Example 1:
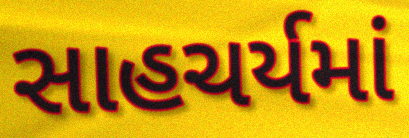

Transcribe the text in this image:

સાહચર્યમાં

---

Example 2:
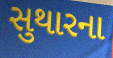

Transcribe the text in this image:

સુથારના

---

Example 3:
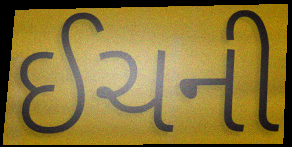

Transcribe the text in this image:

ઈચની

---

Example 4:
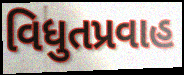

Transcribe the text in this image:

વિધુતપ્રવાહ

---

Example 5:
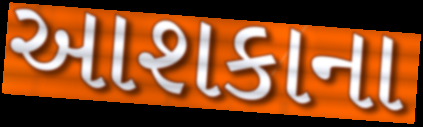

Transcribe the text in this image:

આશકાના